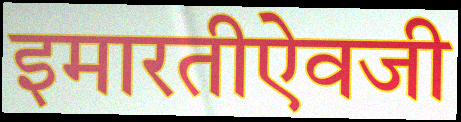
इमारतीऐवजी